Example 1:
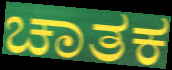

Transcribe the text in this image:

ಚಾತಕ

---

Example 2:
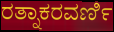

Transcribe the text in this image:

ರತ್ನಾಕರವರ್ಣಿ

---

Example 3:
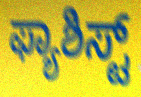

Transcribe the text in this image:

ಫ್ಯಾಶಿಸ್ಟ್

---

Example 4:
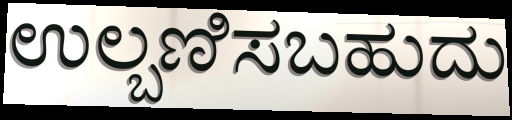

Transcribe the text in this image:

ಉಲ್ಬಣಿಸಬಹುದು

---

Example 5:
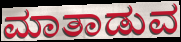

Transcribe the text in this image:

ಮಾತಾಡುವ